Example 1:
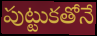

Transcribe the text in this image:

పుట్టుకతోనే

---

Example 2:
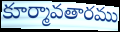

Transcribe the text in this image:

కూర్మావతారము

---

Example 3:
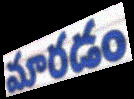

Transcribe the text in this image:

మారడం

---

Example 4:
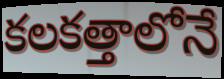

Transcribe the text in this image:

కలకత్తాలోనే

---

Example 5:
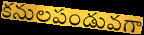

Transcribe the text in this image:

కనులపండువగా